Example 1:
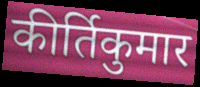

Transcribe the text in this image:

कीर्तिकुमार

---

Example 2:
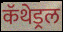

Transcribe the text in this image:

कॅथेड्रल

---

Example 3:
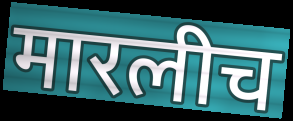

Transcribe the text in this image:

मारलीच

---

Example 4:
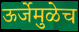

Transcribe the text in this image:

ऊर्जेमुळेच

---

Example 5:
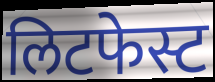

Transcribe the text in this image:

लिटफेस्ट